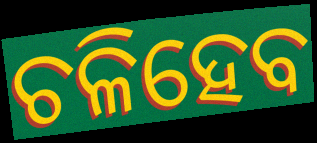
ଚଳିହେବ